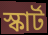
স্কাৰ্ট